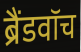
ब्रैंडवॉच